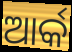
ଆର୍କ